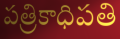
పత్రికాధిపతి